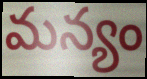
మన్యం